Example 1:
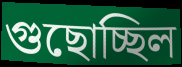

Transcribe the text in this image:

গুছোচ্ছিল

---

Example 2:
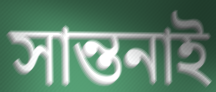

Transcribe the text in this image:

সান্তনাই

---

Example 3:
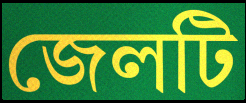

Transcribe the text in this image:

জেলটি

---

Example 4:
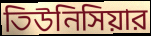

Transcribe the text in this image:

তিউনিসিয়ার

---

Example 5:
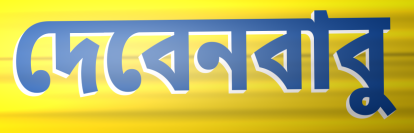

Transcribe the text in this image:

দেবেনবাবু